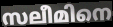
സലീമിനെ